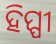
ହିପ୍ପୀ